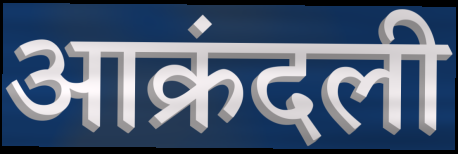
आक्रंदली